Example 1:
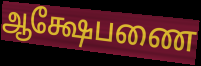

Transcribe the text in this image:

ஆக்ஷேபணை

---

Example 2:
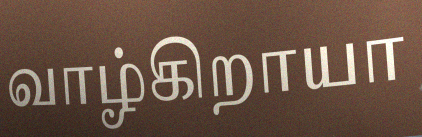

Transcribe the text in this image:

வாழ்கிறாயா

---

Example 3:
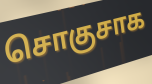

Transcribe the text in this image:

சொகுசாக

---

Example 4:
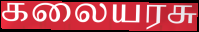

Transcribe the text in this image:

கலையரசு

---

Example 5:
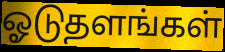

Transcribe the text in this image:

ஓடுதளங்கள்